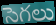
సెగలు